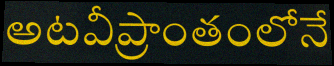
అటవీప్రాంతంలోనే